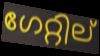
ഗേറ്റില്